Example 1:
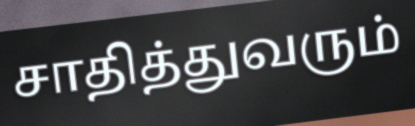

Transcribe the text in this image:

சாதித்துவரும்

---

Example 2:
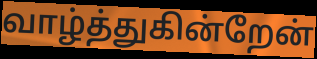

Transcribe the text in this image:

வாழ்த்துகின்றேன்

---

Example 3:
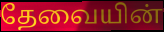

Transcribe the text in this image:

தேவையின்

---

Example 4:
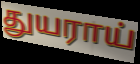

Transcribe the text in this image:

துயராய்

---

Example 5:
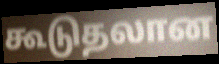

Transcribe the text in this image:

கூடுதலான